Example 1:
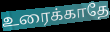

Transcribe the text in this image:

உரைக்காதே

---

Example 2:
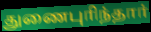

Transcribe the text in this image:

துணைபுரிந்தார்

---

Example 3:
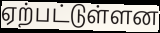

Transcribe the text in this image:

ஏற்பட்டுள்ளன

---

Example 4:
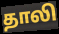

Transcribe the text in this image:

தாலி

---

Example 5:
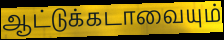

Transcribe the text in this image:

ஆட்டுக்கடாவையும்